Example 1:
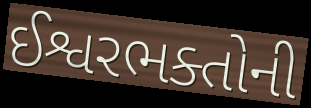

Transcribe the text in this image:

ઈશ્વરભક્તોની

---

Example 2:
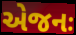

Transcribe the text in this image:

એજનઃ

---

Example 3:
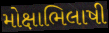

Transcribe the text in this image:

મોક્ષાભિલાષી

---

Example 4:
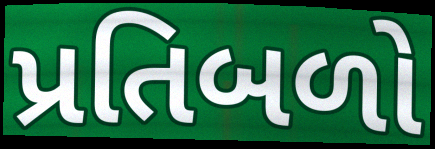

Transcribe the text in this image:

પ્રતિબળો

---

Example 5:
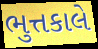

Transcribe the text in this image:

ભુત્તકાલે